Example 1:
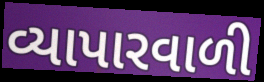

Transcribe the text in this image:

વ્યાપારવાળી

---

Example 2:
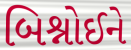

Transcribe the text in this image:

બિશ્નોઈને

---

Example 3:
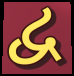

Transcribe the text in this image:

દ્વ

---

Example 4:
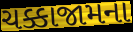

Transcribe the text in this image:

ચક્કાજામના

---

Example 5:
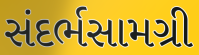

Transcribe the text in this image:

સંદર્ભસામગ્રી